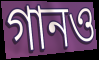
গানও